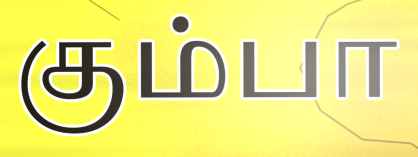
கும்பா